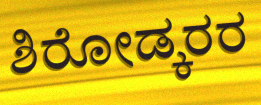
ಶಿರೋಡ್ಕರರ